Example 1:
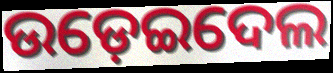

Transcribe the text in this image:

ଉଡ଼େଇଦେଲ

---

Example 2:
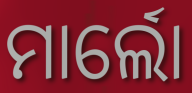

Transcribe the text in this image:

ମାର୍ଲୋ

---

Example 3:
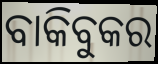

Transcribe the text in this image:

ବାକିବୁକର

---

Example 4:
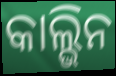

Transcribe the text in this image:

କାଲ୍ଭିନ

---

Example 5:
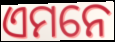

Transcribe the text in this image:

ଏମନେ